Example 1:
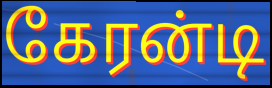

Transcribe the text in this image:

கேரன்டி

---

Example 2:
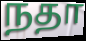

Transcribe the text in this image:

நதா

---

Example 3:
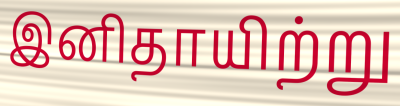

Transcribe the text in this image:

இனிதாயிற்று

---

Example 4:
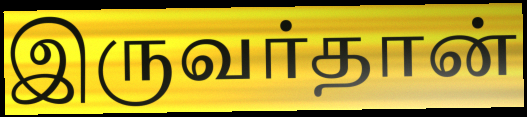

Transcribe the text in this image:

இருவர்தான்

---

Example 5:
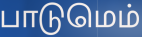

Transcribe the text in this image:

பாடுமெம்